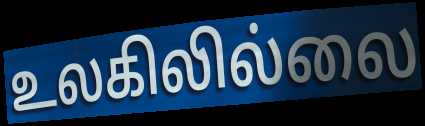
உலகிலில்லை